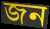
জন